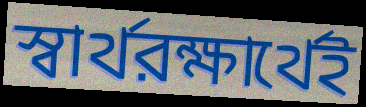
স্বার্থরক্ষার্থেই